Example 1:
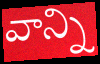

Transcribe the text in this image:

వాన్ని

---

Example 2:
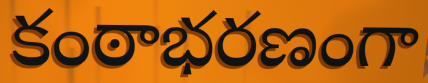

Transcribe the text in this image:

కంఠాభరణంగా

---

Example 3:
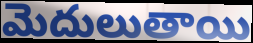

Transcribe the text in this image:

మెదులుతాయి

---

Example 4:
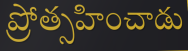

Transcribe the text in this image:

ప్రోత్సహించాడు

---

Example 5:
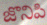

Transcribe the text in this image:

జొనిపి